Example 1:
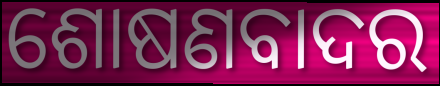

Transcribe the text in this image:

ଶୋଷଣବାଦର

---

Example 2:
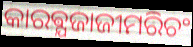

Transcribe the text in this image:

କାରଵ୍ଯଜାଜୀମରିଚଂ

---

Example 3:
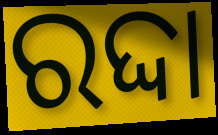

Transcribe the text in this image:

ରଦ୍ଦା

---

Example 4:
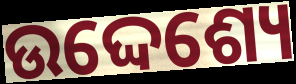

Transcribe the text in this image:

ଉଦ୍ଦେଶ୍ୟେ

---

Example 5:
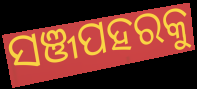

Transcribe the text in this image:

ସଞ୍ଜପହରକୁ